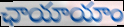
ఛాయాయాం